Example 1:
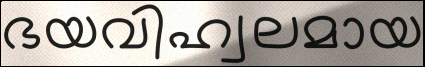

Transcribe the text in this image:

ഭയവിഹ്വലമായ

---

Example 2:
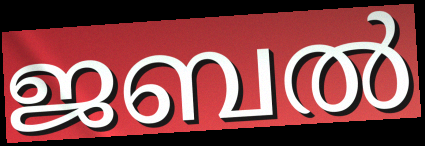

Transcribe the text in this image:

ജബൽ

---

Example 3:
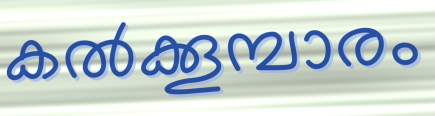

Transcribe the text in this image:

കൽക്കൂമ്പാരം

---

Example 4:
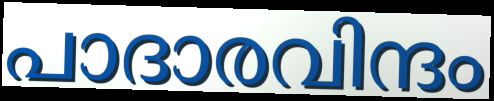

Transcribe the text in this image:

പാദാരവിന്ദം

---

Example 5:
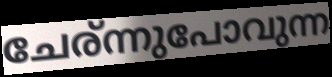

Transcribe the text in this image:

ചേര്ന്നുപോവുന്ന